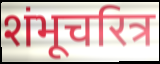
शंभूचरित्र